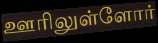
ஊரிலுள்ளோர்